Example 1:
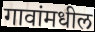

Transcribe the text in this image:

गावांमधील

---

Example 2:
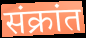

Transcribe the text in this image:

संक्रांत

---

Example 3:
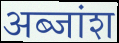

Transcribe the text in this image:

अब्जांश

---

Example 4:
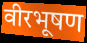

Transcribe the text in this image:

वीरभूषण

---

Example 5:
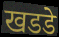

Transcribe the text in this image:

खडडे